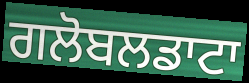
ਗਲੋਬਲਡਾਟਾ